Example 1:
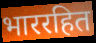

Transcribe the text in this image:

भाररहित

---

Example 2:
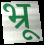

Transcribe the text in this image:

भ्रू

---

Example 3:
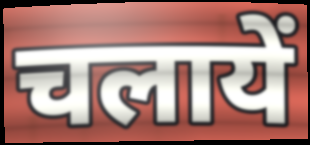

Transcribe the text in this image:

चलायें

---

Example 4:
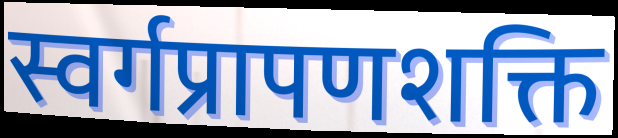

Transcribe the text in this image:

स्वर्गप्रापणशक्ति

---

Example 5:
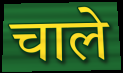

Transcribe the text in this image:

चाले